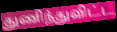
துணிந்துவிட்ட